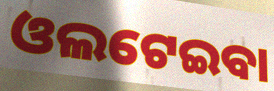
ଓଲଟେଇବା